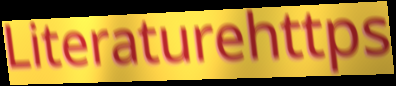
Literaturehttps